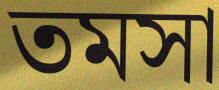
তমসা